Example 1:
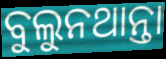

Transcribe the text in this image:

ବୁଲୁନଥାନ୍ତା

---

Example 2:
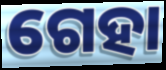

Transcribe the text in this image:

ଗେହା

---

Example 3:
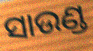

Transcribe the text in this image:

ସାଉଣ୍ଡ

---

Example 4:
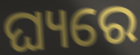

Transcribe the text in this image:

ଘ୍ୟରେ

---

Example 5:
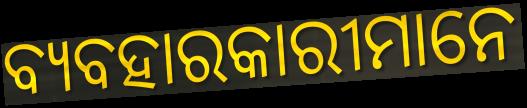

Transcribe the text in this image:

ବ୍ୟବହାରକାରୀମାନେ